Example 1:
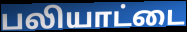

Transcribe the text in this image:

பலியாட்டை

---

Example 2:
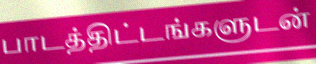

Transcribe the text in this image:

பாடத்திட்டங்களுடன்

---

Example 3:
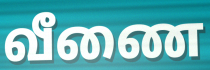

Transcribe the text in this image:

வீணை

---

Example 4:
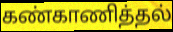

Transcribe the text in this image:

கண்காணித்தல்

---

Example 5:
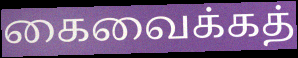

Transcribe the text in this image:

கைவைக்கத்